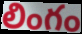
లింగం